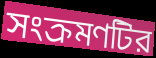
সংক্রমণটির